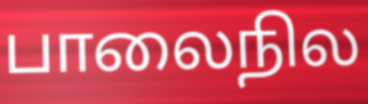
பாலைநில